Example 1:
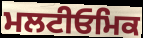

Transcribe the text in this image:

ਮਲਟੀਓਮਿਕ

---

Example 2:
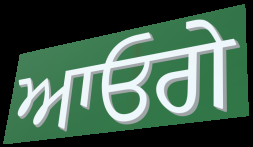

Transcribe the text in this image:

ਆਓਗੇ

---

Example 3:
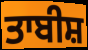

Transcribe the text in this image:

ਤਾਬੀਸ਼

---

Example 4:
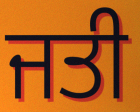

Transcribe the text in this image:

ਜਤੀ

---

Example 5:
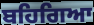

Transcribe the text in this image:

ਬਹਿਗਿਆ